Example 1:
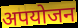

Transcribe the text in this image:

अपयोजन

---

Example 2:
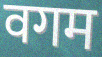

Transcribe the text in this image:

वगम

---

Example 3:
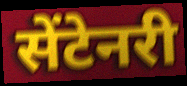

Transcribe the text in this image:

सेंटेनरी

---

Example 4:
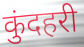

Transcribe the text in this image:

कुंदहरी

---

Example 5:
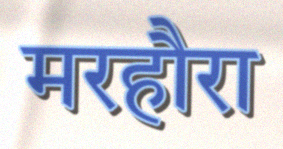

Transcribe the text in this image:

मरहौरा